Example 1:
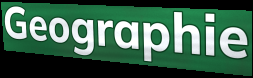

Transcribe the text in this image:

Geographie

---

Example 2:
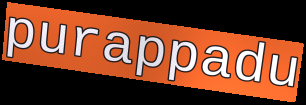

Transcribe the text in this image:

purappadu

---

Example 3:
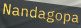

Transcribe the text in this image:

Nandagopa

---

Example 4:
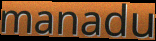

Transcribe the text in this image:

manadu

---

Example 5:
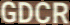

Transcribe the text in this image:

GDCR